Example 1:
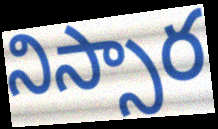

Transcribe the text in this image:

నిస్సార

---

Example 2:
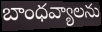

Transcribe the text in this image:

బాంధవ్యాలను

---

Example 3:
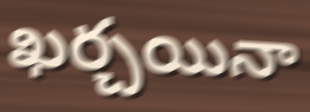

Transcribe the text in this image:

ఖర్చయినా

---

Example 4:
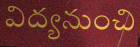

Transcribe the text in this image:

విద్యనుంచి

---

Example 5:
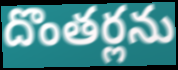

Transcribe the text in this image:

దొంతర్లను